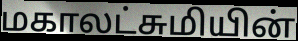
மகாலட்சுமியின்